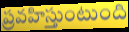
ప్రవహిస్తుంటుంది